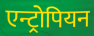
एन्ट्रोपियन